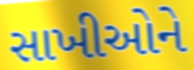
સાખીઓને